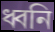
ধ্বনি